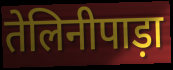
तेलिनीपाड़ा